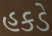
હકડે